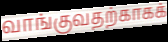
வாங்குவதற்காகக்